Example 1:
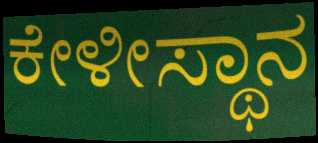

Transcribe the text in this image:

ಕೇಳೀಸ್ಥಾನ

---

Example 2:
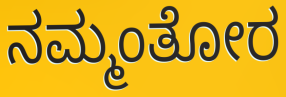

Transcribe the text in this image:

ನಮ್ಮಂತೋರ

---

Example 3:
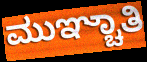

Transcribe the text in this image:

ಮುಞ್ಚಾತಿ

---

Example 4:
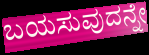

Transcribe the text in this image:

ಬಯಸುವುದನ್ನೇ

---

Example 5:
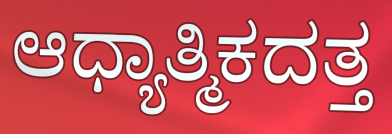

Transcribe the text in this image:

ಆಧ್ಯಾತ್ಮಿಕದತ್ತ